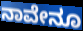
ನಾವೇನೂ